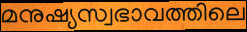
മനുഷ്യസ്വഭാവത്തിലെ